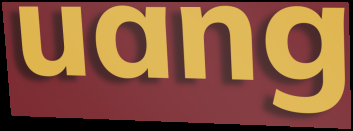
uang